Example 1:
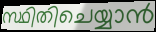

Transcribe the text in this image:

സ്ഥിതിചെയ്യാൻ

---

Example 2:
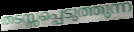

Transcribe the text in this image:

തടസ്സപ്പെടുത്തുന്ന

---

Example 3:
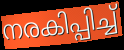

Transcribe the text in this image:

നരകിപ്പിച്ച്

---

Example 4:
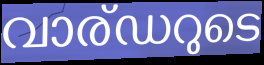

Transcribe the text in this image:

വാര്ഡറുടെ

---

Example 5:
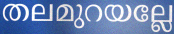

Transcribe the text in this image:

തലമുറയല്ലേ